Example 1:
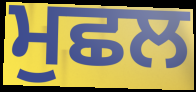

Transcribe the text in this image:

ਮੁਛਲ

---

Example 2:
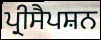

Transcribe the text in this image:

ਪ੍ਰੀਸੈਪਸ਼ਨ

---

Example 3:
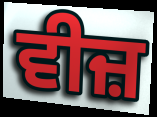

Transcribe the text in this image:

ਵੀਜ਼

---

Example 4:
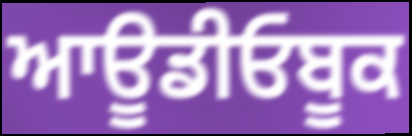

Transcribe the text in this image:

ਆਊਡੀਓਬੂਕ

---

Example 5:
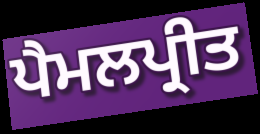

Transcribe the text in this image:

ਪੈਮਲਪ੍ਰੀਤ